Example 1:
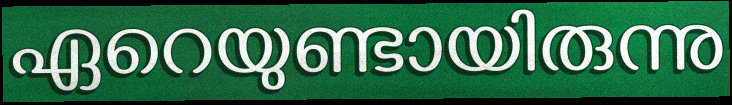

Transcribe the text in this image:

ഏറെയുണ്ടായിരുന്നു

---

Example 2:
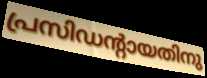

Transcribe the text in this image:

പ്രസിഡന്റായതിനു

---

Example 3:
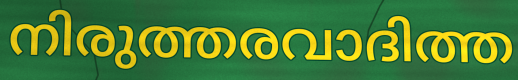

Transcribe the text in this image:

നിരുത്തരവാദിത്ത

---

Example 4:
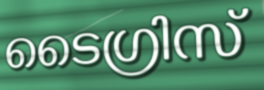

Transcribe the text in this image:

ടൈഗ്രിസ്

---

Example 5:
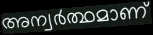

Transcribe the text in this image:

അന്വർത്ഥമാണ്